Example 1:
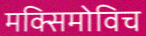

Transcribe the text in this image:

मक्सिमोविच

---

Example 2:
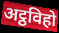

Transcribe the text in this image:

अट्ठविहो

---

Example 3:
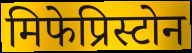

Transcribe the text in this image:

मिफेप्रिस्टोन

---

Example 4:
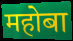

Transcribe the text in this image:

महोबा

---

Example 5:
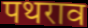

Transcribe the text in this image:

पथराव